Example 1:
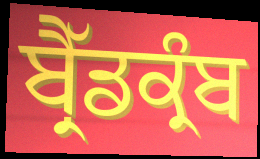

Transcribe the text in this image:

ਬ੍ਰੈੱਡਕ੍ਰੰਬ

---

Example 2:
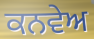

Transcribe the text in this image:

ਕਨਵੇਅ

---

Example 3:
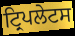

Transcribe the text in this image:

ਟ੍ਰਿਪਲੇਟਸ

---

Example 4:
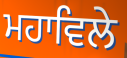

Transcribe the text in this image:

ਮਹਾਵਿਲੇ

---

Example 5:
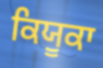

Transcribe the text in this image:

ਕਿਯੂਕਾ